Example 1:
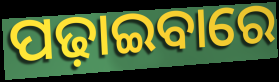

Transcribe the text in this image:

ପଢ଼ାଇବାରେ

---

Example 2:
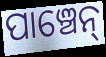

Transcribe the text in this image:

ପାଞ୍ଚେନ୍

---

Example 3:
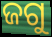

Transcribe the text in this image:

ଜଗୁ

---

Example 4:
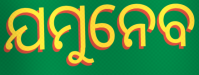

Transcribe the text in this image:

ଯମୁନେବ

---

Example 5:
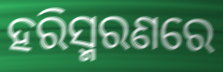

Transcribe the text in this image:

ହରିସ୍ମରଣରେ